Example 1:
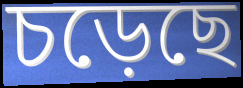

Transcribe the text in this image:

চড়েছে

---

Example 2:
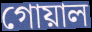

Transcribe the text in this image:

গোয়াল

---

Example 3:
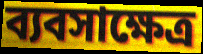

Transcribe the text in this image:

ব্যবসাক্ষেত্র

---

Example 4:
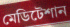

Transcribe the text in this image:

মেডিটেশান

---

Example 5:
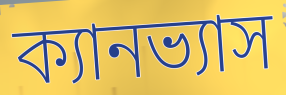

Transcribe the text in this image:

ক্যানভ্যাস